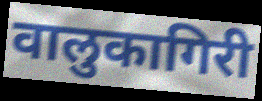
वालुकागिरी